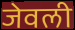
जेवली